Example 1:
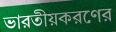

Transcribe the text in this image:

ভারতীয়করণের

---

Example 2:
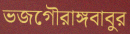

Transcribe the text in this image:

ভজগৌরাঙ্গবাবুর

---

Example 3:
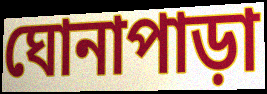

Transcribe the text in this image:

ঘোনাপাড়া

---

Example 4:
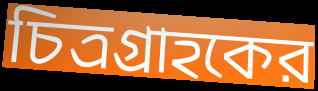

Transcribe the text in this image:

চিত্রগ্রাহকের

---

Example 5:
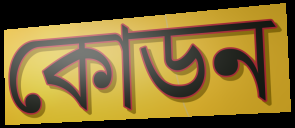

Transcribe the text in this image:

কোডন